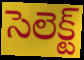
సెలెక్ట్